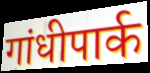
गांधीपार्क